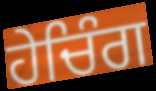
ਹੇਚਿੰਗ